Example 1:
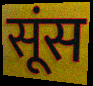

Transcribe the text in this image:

सूंस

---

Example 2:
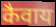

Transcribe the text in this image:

कैवाय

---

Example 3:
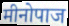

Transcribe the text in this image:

मीनोपाज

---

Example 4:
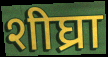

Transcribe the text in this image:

शीघ्रा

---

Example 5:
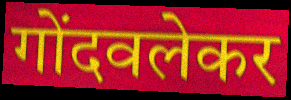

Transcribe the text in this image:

गोंदवलेकर